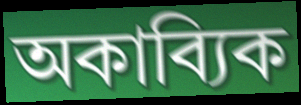
অকাব্যিক